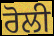
ਰੋਲੀ